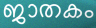
ജാതകം